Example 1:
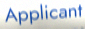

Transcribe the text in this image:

Applicant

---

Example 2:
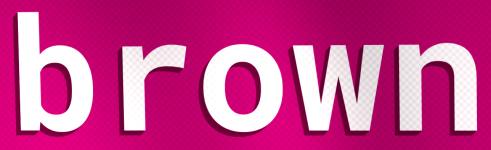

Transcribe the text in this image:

brown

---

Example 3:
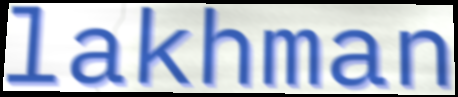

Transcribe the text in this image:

lakhman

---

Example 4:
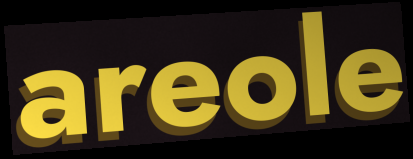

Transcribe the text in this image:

areole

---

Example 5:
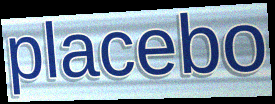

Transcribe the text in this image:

placebo